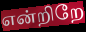
என்றிறே